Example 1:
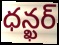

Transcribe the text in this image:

ధన్ఖర్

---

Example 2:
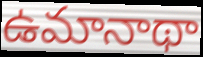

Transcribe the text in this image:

ఉమానాథా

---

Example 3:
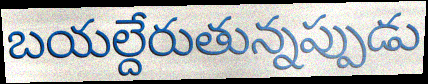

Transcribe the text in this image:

బయల్దేరుతున్నప్పుడు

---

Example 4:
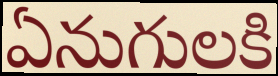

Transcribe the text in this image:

ఏనుగులకి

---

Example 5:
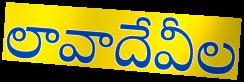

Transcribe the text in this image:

లావాదేవీల